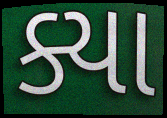
ક્યા